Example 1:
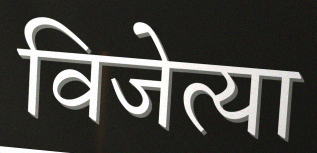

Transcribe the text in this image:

विजेत्या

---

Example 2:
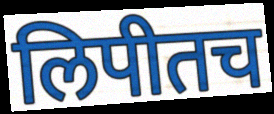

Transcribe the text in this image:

लिपीतच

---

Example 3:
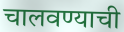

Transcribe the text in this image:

चालवण्याची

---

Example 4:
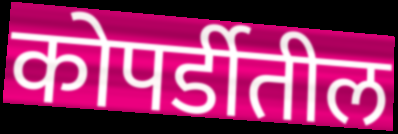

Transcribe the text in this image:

कोपर्डीतील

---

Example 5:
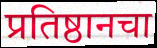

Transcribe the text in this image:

प्रतिष्ठानचा